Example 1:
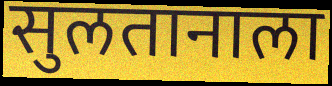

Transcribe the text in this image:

सुलतानाला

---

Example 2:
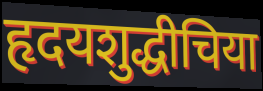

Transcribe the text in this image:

हृदयशुद्धीचिया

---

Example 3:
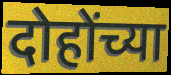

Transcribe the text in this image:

दोहोंच्या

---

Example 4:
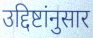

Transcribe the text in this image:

उद्दिष्टांनुसार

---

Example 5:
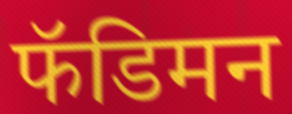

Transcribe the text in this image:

फॅडिमन